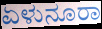
ಏಳುನೂರಾ